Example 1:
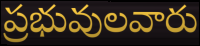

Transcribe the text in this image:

ప్రభువులవారు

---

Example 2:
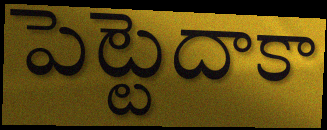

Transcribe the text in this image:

పెట్టెదాకా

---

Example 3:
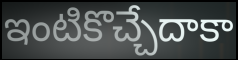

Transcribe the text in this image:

ఇంటికొచ్చేదాకా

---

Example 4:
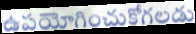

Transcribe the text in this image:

ఉపయోగించుకోగలడు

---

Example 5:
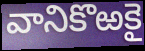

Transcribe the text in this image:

వానికొఱకై